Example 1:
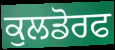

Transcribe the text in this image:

ਕੁਲਡੋਰਫ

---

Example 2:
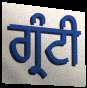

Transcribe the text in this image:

ਗ੍ਰੰਟੀ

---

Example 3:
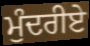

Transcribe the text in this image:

ਮੁੰਦਰੀਏ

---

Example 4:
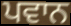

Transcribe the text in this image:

ਪਵਾਨ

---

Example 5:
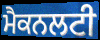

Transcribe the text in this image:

ਮੈਕਨਲਟੀ